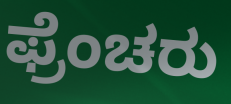
ಫ್ರೆಂಚರು